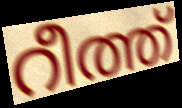
റീത്ത്